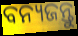
ବନ୍ୟଜନ୍ତୁ